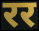
रर